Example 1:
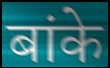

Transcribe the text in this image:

बांके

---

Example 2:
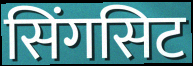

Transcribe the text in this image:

सिंगसिट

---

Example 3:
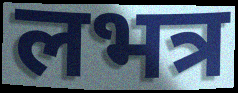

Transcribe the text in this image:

लभत्र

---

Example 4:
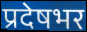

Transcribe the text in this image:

प्रदेषभर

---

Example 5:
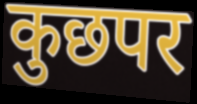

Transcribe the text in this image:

कुछपर